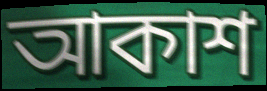
আকাশ